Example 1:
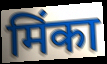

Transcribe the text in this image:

मिंका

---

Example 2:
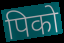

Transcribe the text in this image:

पिको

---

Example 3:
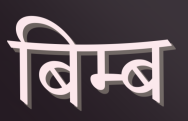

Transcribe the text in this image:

बिम्ब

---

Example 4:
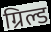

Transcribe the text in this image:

ग्रिल्ड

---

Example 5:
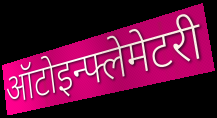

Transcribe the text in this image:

ऑटोइन्फ्लेमेटरी